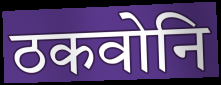
ठकवोनि